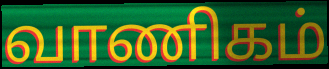
வாணிகம்